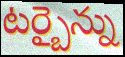
టర్బైన్ను